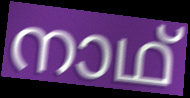
നാഥ്